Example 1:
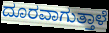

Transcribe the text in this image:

ದೂರವಾಗುತ್ತಾಳೆ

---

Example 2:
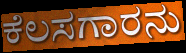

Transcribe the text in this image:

ಕೆಲಸಗಾರನು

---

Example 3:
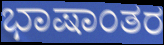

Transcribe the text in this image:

ಭಾಷಾಂತರ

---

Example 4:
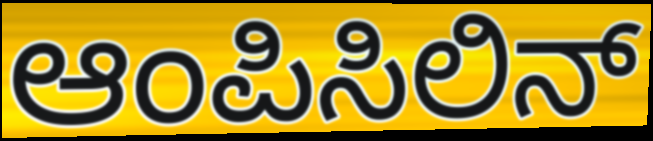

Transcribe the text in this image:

ಆಂಪಿಸಿಲಿನ್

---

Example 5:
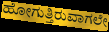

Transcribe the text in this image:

ಹೋಗುತ್ತಿರುವಾಗಲೇ